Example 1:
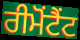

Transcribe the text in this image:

ਰੀਮੋਂਟੈਂਟ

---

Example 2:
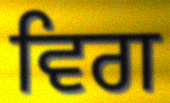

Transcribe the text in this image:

ਵਿਗ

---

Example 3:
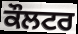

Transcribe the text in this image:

ਕੌਲਟਰ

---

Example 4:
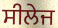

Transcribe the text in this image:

ਸੀਲੇਜ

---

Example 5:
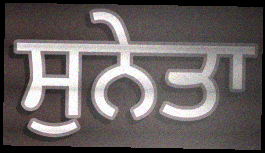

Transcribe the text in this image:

ਸੁਨੇਤਾ